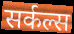
सर्कल्स